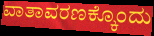
ವಾತಾವರಣಕ್ಕೊಂದು